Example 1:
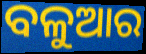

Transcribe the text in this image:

ବଳୁଆର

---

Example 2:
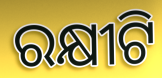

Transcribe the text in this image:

ରକ୍ଷୀଟି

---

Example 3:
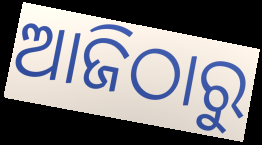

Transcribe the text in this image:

ଆଜିଠାରୁ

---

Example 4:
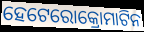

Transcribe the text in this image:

ହେଟେରୋକ୍ରୋମାଟିନ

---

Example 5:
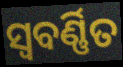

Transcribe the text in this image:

ସ୍ୱବର୍ଣ୍ଣିତ